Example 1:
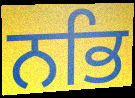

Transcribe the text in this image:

ਨਭਿ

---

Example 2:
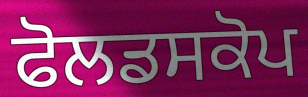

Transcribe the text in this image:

ਫੋਲਡਸਕੋਪ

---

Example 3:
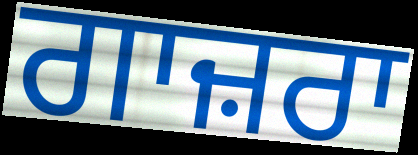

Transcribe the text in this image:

ਗਾਜ਼ਰਾ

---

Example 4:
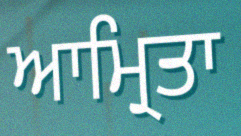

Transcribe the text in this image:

ਆਮ੍ਰਿਤਾ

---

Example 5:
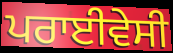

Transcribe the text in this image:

ਪਰਾਈਵੇਸੀ